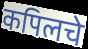
कपिलचे